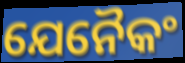
ଯେନୈକଂ